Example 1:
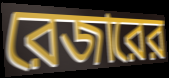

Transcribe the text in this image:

রেজারের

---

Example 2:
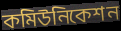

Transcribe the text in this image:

কমিউনিকেশন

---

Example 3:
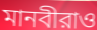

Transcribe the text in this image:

মানবীরাও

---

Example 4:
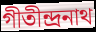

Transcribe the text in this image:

গীতীন্দ্রনাথ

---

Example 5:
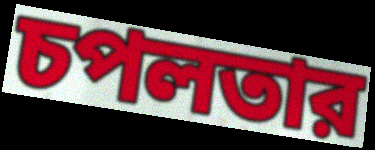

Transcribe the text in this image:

চপলতার